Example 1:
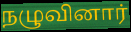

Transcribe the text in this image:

நழுவினார்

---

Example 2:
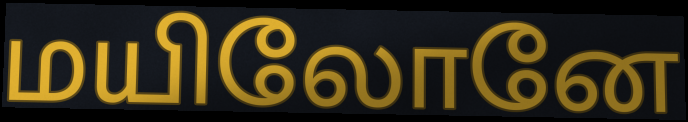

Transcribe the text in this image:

மயிலோனே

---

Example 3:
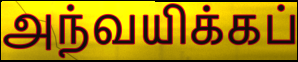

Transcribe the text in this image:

அந்வயிக்கப்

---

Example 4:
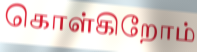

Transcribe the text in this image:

கொள்கிறோம்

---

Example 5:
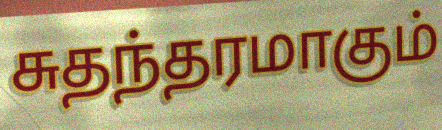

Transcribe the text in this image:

சுதந்தரமாகும்